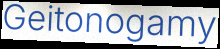
Geitonogamy